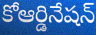
కోఆర్డినేషన్